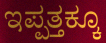
ಇಪ್ಪತ್ತಕ್ಕೂ